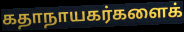
கதாநாயகர்களைக்